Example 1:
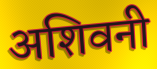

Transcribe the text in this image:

अशिवनी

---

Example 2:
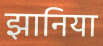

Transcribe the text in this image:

झानिया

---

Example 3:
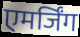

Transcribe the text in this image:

एमर्जिंग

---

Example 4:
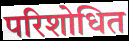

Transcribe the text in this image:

परिशोधित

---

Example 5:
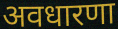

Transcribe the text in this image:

अवधारणा